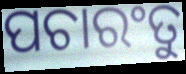
ପଚାରଂତୁ